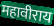
महावीराय